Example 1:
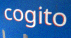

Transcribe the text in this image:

cogito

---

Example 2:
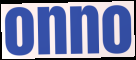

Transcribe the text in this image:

onno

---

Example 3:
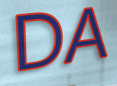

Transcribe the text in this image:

DA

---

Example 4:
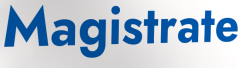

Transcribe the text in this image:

Magistrate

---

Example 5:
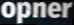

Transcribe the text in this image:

opner